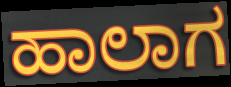
ಹಾಲಾಗ